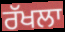
ਰੱਖਲਾ